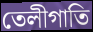
তেলীগাতি